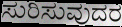
ಸುರಿಸುವುದರ